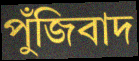
পুঁজিবাদ